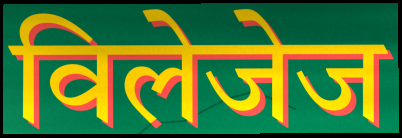
विलेजेज